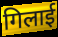
गिलाई